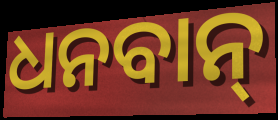
ଧନବାନ୍